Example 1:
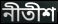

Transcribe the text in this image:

নীতীশ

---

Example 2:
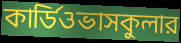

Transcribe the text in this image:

কার্ডিওভাসকুলার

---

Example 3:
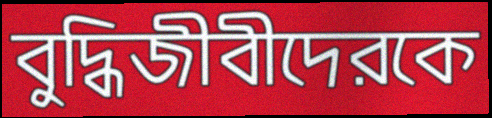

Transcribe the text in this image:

বুদ্ধিজীবীদেরকে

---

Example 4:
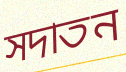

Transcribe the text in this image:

সদাতন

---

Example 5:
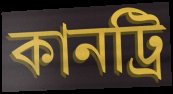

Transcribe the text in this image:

কানট্রি